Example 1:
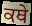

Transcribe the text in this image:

ਕਥੇ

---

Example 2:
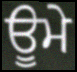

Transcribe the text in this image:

ਊਮੇ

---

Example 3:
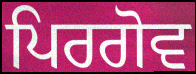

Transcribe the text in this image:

ਪਿਰਗੋਵ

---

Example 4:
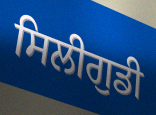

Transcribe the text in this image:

ਸਿਲੀਗੁਡੀ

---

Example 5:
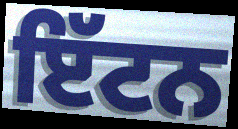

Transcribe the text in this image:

ਇੱਟਨ